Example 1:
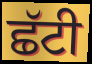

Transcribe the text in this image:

ਛੱਟੀ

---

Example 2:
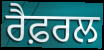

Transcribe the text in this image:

ਰੈਫ਼ਰਲ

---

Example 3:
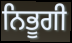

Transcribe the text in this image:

ਨਿਭੂਗੀ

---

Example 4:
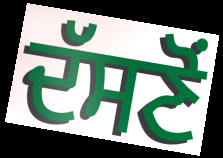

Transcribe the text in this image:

ਦੱਸਣੋਂ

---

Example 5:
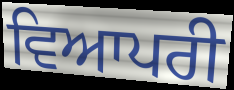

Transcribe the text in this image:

ਵਿਆਪਰੀ